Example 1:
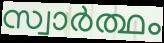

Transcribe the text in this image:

സ്വാർത്ഥം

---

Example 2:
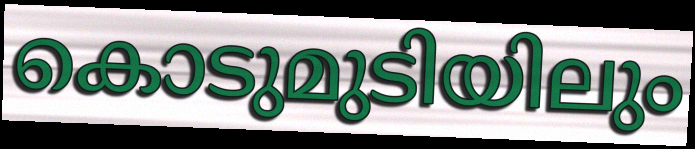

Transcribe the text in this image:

കൊടുമുടിയിലും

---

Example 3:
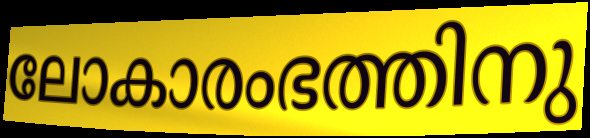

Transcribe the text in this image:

ലോകാരംഭത്തിനു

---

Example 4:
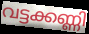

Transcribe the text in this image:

വട്ടക്കണ്ണി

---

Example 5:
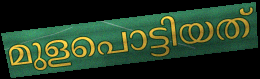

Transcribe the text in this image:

മുളപൊട്ടിയത്